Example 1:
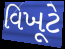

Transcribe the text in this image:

વિખૂટે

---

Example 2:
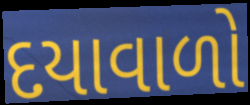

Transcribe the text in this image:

દયાવાળો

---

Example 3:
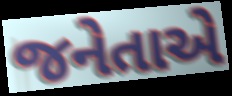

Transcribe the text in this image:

જનેતાએ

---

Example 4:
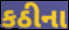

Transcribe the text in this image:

કઠીના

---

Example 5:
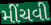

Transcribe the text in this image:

મીંચવી